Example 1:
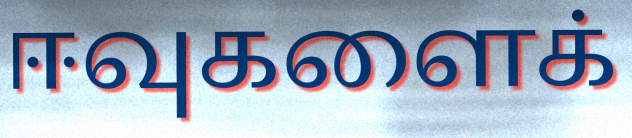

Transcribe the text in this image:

ஈவுகளைக்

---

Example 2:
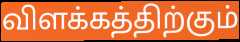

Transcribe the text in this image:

விளக்கத்திற்கும்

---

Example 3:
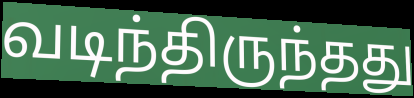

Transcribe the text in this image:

வடிந்திருந்தது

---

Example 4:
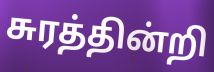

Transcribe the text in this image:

சுரத்தின்றி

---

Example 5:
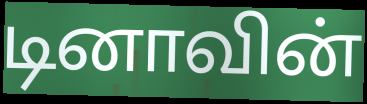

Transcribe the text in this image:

டினாவின்